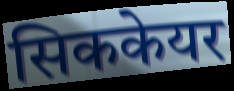
सिककेयर